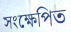
সংক্ষেপিত